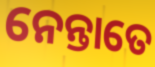
ନେନ୍ତାତେ